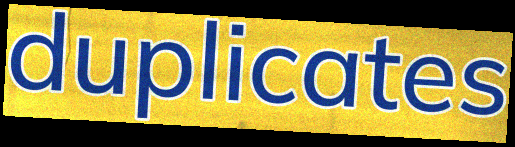
duplicates